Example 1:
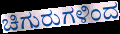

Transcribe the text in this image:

ಚಿಗುರುಗಳಿಂದ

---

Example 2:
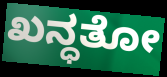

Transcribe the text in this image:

ಖನ್ಧತೋ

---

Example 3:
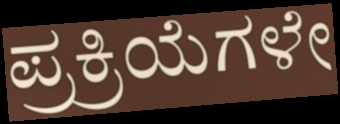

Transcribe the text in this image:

ಪ್ರಕ್ರಿಯೆಗಳೇ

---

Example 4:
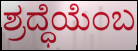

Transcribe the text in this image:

ಶ್ರದ್ಧೆಯೆಂಬ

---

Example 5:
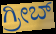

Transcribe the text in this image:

ಗ್ರೀಬ್